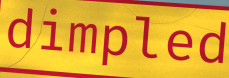
dimpled